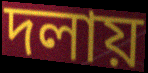
দলায়